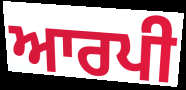
ਆਰਪੀ